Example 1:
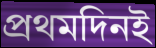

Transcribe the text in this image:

প্রথমদিনই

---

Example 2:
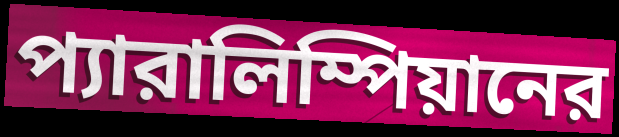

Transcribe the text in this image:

প্যারালিম্পিয়ানের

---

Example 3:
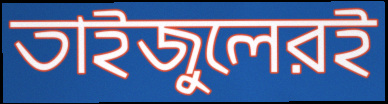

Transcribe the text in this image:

তাইজুলেরই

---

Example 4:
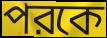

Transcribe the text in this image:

পরকে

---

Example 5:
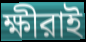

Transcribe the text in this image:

ক্ষীরাই